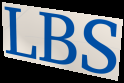
LBS